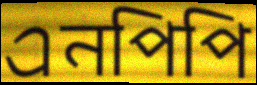
এনপিপি